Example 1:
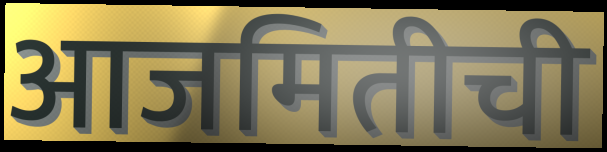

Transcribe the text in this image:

आजमितीची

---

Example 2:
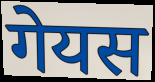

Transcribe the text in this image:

गेयस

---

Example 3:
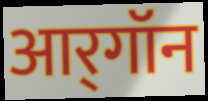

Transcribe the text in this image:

आर्‌गॉन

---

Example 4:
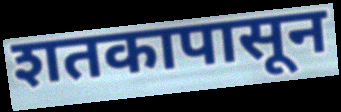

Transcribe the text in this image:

शतकापासून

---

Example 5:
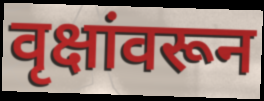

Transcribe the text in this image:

वृक्षांवरून